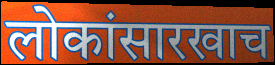
लोकांसारखाच